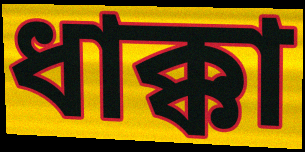
ধাক্কা